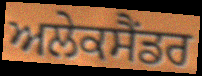
ਅਲੇਕਸੈਂਡਰ